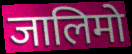
जालिमो